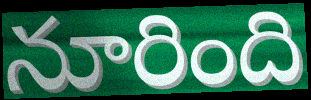
నూరింది